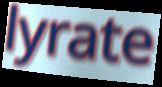
lyrate